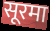
सूरमा